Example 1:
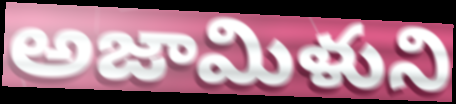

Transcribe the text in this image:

అజామిళుని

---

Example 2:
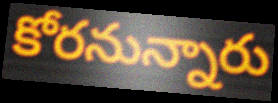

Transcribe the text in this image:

కోరనున్నారు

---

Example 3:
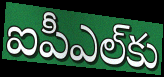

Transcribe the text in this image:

ఐపీఎల్‌కు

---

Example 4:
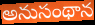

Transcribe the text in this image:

అనుసంథాన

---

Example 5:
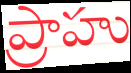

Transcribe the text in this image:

ప్రాహు